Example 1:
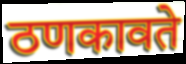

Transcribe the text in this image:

ठणकावते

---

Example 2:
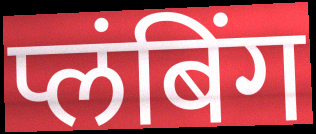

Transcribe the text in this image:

प्लंबिंग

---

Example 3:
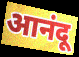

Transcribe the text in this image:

आनंदू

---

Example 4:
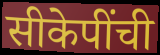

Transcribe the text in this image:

सीकेपींची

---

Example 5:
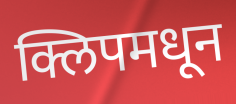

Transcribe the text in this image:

क्लिपमधून